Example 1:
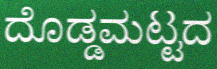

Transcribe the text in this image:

ದೊಡ್ಡಮಟ್ಟದ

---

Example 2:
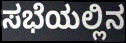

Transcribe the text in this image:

ಸಭೆಯಲ್ಲಿನ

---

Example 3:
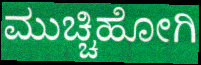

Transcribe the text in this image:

ಮುಚ್ಚಿಹೋಗಿ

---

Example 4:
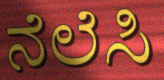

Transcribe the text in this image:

ನೆಲೆಸಿ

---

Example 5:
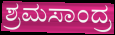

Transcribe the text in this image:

ಶ್ರಮಸಾಂದ್ರ